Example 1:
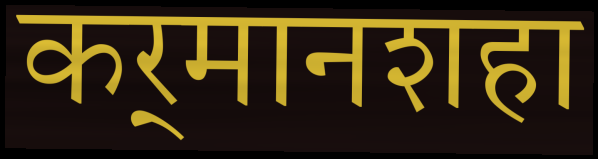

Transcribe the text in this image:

कर्मानशहा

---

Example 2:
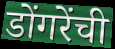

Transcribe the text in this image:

डोंगरेंची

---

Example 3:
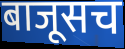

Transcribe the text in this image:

बाजूसच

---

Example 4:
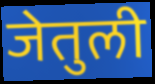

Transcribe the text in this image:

जेतुली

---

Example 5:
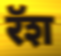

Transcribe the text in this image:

रॅश